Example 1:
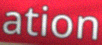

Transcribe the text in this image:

ation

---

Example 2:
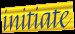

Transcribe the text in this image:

initiate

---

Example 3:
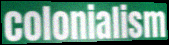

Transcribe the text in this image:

colonialism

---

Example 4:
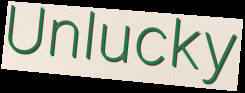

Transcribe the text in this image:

Unlucky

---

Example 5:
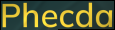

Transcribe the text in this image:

Phecda